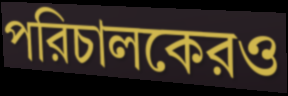
পরিচালকেরও